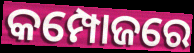
କମ୍ପୋଜରେ